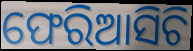
ଫେରିଆସିଚି